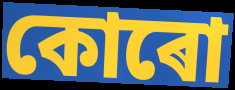
কোৰো